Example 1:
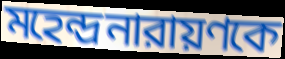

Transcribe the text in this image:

মহেন্দ্রনারায়ণকে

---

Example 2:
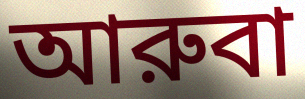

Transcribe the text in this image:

আরুবা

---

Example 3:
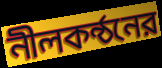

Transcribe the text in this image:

নীলকন্ঠনের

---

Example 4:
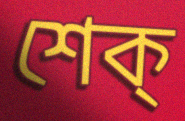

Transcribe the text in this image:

শেক্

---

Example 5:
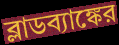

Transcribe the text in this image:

ব্লাডব্যাঙ্কের